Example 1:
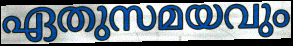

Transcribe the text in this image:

ഏതുസമയവും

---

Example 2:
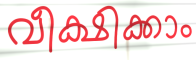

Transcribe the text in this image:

വീക്ഷിക്കാം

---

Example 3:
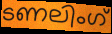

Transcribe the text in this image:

ടണലിംഗ്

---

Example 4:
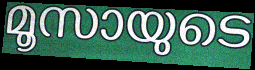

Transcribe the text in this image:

മൂസായുടെ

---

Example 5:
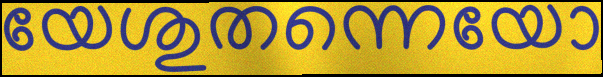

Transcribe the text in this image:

യേശുതന്നെയോ